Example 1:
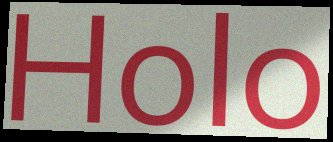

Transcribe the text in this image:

Holo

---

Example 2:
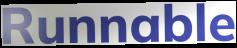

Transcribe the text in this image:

Runnable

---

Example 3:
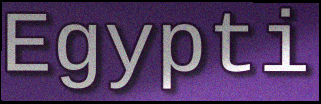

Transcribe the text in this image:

Egypti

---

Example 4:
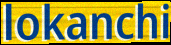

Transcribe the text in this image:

lokanchi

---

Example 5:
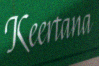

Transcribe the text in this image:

Keertana